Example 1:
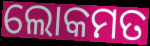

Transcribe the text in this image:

ଲୋକମତ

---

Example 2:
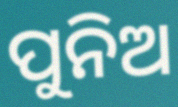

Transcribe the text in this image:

ପୁନିଅ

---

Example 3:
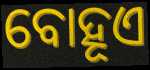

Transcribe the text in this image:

ବୋହୂଏ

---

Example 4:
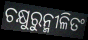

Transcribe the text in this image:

ଚକ୍ଷୁରୁନ୍ମୀଳିତଂ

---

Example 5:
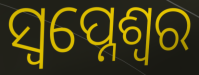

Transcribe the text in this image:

ସ୍ଵପ୍ନେଶ୍ଵର